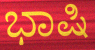
ಭಾಷಿ